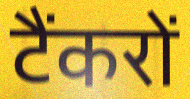
टैंकरों